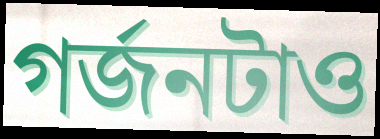
গর্জনটাও